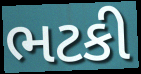
ભટકી